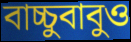
বাচ্চুবাবুও